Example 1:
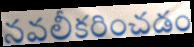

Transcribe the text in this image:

నవలీకరించడం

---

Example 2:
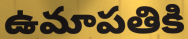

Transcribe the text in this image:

ఉమాపతికి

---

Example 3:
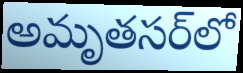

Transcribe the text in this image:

అమృతసర్‌లో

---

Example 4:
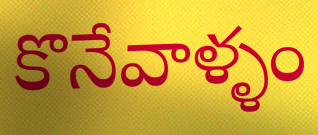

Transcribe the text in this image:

కొనేవాళ్ళం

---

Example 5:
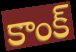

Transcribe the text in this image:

కాంక్